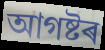
আগষ্টৰ